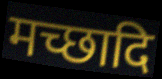
मच्छादि